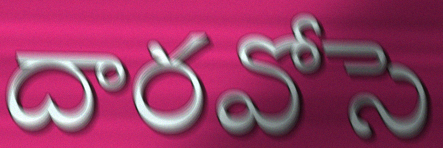
దారవోసె